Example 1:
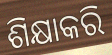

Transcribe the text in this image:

ଶିକ୍ଷାକରି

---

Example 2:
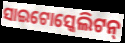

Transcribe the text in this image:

ସାଇଟୋସ୍କେଲିଟନ୍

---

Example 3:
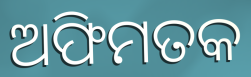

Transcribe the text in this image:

ଅଫିମତକ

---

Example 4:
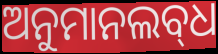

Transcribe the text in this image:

ଅନୁମାନଲବ୍‌ଧ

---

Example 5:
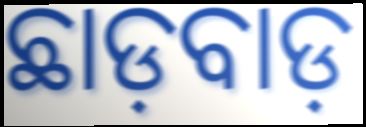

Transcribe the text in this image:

ଛାଡ଼ବାଡ଼